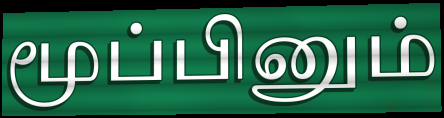
மூப்பினும்